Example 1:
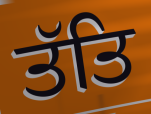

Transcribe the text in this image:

ਤੱਤਿ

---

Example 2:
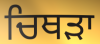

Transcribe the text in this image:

ਚਿਥੜਾ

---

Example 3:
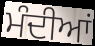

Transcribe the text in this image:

ਮੰਦੀਆਂ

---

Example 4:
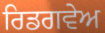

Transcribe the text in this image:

ਰਿਡਗਵੇਅ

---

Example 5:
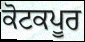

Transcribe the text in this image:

ਕੋਟਕਪੂਰ